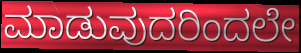
ಮಾಡುವುದರಿಂದಲೇ